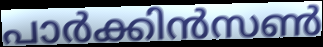
പാർക്കിൻസൺ